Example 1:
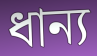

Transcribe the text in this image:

ধান্য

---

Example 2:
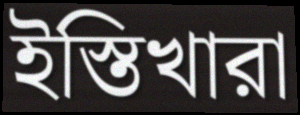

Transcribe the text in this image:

ইস্তিখারা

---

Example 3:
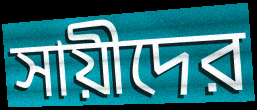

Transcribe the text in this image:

সায়ীদের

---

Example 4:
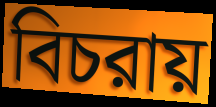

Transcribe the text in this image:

বিচরায়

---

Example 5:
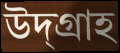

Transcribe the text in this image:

উদ্গ্রাহ